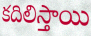
కదిలిస్తాయి